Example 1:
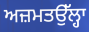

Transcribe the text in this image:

ਅਜ਼ਮਤਉੱਲ੍ਹਾ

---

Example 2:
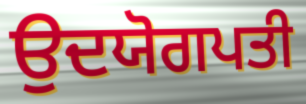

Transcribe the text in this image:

ਉਦਯੋਗਪਤੀ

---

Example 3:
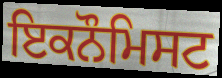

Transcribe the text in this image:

ਇਕਨੌਮਿਸਟ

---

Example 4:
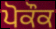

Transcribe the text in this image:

ਪੋਕੌਕ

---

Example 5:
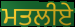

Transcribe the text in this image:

ਮਤਲੀਏ